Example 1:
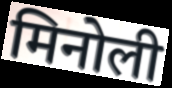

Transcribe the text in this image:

मिनोली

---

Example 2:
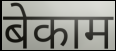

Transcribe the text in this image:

बेकाम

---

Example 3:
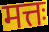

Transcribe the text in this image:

मत्तः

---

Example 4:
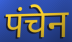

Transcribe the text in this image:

पंचेन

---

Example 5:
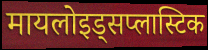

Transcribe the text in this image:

मायलोइड्सप्लास्टिक